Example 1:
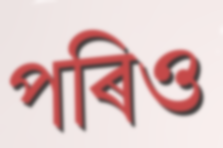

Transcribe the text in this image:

পৰিও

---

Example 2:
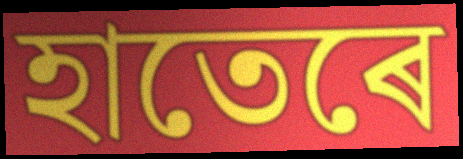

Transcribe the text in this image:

হাতেৰে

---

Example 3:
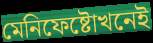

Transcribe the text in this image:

মেনিফেষ্টোখনেই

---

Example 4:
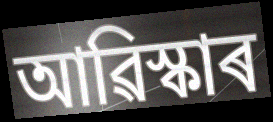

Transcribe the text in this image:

আৱিস্কাৰ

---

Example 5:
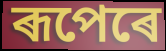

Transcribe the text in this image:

ৰূপেৰে